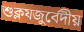
শুক্লযজুর্বেদীয়